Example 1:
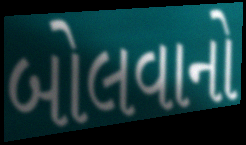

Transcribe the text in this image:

બોલવાનો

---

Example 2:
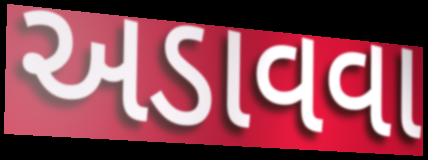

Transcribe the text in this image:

અડાવવા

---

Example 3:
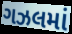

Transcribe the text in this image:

ગઝલમાં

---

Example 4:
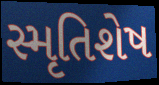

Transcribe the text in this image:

સ્મૃતિશેષ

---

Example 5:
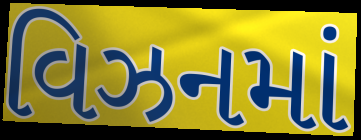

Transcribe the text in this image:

વિઝનમાં